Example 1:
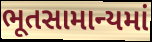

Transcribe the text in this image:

ભૂતસામાન્યમાં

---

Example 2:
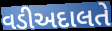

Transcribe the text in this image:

વડીઅદાલતે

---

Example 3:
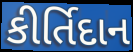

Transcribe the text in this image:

કીર્તિદાન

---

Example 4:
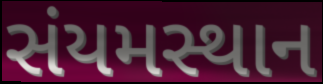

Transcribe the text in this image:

સંયમસ્થાન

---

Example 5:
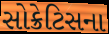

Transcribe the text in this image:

સોક્રેટિસના